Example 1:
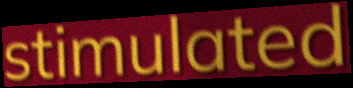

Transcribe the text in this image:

stimulated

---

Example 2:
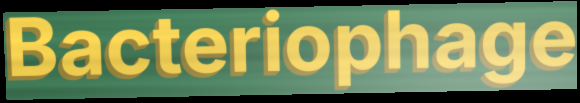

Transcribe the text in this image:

Bacteriophage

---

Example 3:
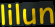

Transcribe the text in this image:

lilun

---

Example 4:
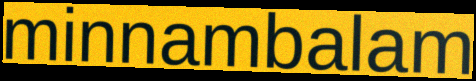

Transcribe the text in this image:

minnambalam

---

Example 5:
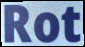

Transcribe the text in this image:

Rot